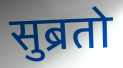
सुब्रतो